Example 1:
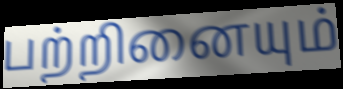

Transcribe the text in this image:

பற்றினையும்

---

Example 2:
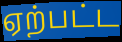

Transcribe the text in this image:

ஏற்பட்ட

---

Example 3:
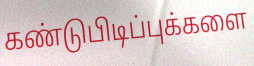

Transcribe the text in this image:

கண்டுபிடிப்புக்களை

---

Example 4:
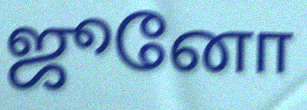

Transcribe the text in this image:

ஜூனோ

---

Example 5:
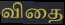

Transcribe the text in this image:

விதை